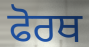
ਫੋਰਥ